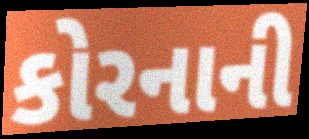
કોરનાની